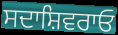
ਸਦਾਸ਼ਿਵਰਾਓ